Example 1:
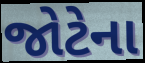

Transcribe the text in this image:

જોટેના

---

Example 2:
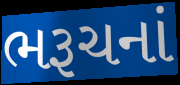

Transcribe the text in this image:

ભરૂચનાં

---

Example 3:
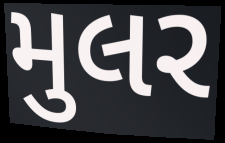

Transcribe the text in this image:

મુલર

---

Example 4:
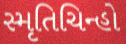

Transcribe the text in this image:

સ્મૃતિચિન્હો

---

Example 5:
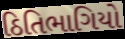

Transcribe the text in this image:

ઠિતિભાગિયો